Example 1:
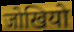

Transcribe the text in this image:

जोखियो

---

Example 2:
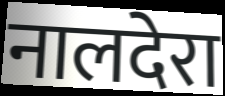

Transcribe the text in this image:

नालदेरा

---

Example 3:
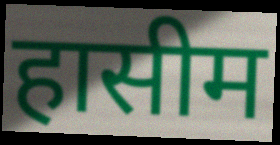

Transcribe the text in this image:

हासीम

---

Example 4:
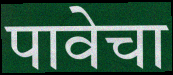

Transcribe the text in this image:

पावेचा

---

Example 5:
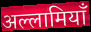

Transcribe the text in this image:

अल्लामियाँ